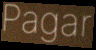
Pagar